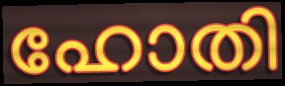
ഹോതി